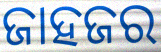
ଜାହଜର